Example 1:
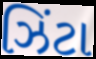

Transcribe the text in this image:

ઝિંટા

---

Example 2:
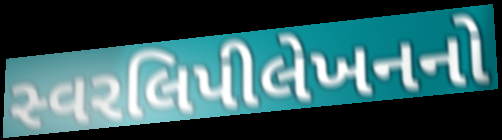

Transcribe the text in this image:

સ્વરલિપીલેખનનો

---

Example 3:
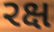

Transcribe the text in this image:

રક્ષ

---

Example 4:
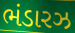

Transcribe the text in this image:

ભંડારઝ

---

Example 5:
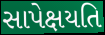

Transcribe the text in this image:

સાપેક્ષયતિ